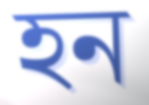
হন